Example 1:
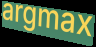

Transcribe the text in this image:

argmax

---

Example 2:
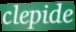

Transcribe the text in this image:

clepide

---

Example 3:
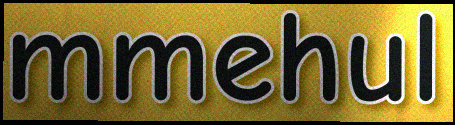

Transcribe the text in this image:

mmehul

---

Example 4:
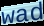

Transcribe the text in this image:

wad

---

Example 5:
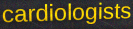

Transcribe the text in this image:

cardiologists